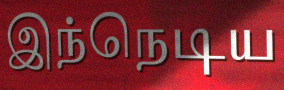
இந்நெடிய